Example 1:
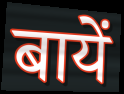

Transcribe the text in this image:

बायें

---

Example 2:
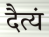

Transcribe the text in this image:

दैत्यं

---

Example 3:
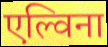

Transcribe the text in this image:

एल्विना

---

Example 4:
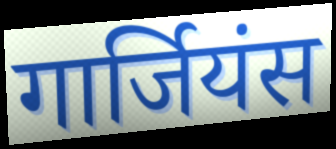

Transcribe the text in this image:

गार्जियंस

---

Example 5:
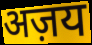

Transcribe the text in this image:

अज़य